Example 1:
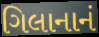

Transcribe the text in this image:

ગિલાનાનં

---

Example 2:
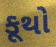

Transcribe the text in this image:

કૂથો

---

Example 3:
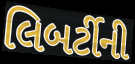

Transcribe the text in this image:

લિબર્ટીની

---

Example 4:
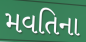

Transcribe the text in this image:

મવતિના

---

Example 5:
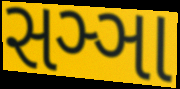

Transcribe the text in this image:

સઞ્ઞા